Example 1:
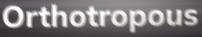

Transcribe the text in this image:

Orthotropous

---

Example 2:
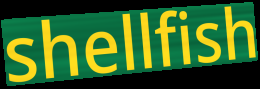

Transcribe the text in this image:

shellfish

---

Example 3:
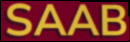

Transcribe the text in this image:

SAAB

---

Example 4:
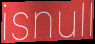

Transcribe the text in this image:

isnull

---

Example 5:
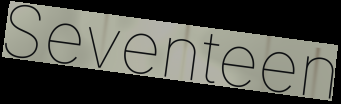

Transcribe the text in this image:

Seventeen